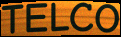
TELCO